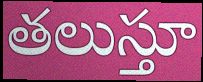
తలుస్తూ